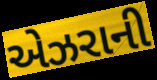
એઝરાની